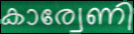
കാര്വേണി